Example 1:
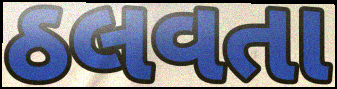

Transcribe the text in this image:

ઠલવતા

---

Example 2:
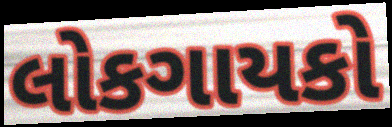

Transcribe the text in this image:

લોકગાયકો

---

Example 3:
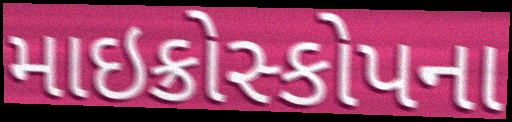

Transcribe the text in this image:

માઇક્રોસ્કોપના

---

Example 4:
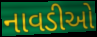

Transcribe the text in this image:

નાવડીઓ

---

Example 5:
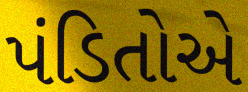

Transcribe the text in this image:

પંડિતોએ